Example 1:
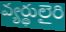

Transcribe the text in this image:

వ్యర్థులైరి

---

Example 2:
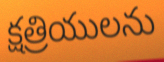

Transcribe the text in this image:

క్షత్రియులను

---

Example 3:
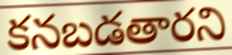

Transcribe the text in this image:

కనబడతారని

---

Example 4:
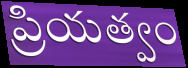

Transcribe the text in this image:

ప్రియత్వం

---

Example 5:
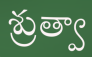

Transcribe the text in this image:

శ్రుత్వా